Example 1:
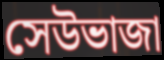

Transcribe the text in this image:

সেউভাজা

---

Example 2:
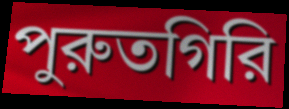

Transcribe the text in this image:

পুরুতগিরি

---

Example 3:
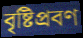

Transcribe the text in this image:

বৃষ্টিপ্রবণ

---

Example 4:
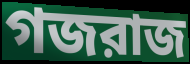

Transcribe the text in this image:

গজরাজ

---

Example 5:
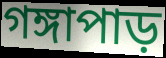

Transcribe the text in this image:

গঙ্গাপাড়